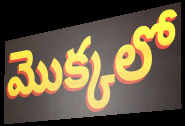
మొక్కలో